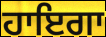
ਹਾਇਗਾ